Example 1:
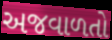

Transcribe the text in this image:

અજવાળતો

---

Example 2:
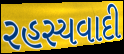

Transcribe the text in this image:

રહસ્યવાદી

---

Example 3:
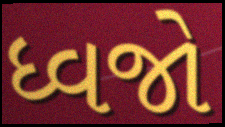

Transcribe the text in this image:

ધ્વજો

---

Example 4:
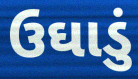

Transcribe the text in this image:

ઉઘાડું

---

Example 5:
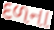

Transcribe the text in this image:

દળના